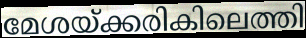
മേശയ്ക്കരികിലെത്തി